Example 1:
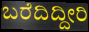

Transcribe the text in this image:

ಬರೆದಿದ್ದೀರಿ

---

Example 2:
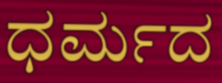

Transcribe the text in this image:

ಧರ್ಮದ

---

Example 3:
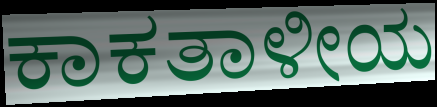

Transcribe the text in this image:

ಕಾಕತಾಳೀಯ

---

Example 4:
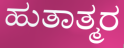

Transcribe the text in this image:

ಹುತಾತ್ಮರ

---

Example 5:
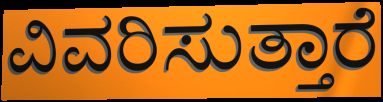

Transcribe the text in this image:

ವಿವರಿಸುತ್ತಾರೆ